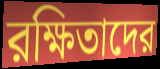
রক্ষিতাদের